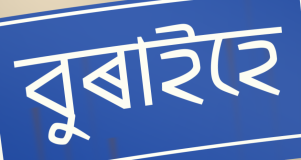
বুৰাইহে